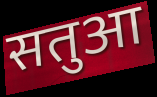
सतुआ